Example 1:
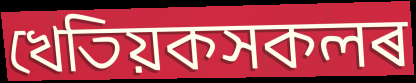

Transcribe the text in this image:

খেতিয়কসকলৰ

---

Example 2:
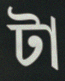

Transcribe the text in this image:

টা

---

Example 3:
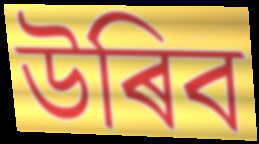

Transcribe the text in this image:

উৰিব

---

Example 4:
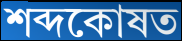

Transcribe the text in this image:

শব্দকোষত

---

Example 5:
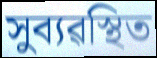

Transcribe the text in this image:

সুব্যৱস্থিত